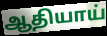
ஆதியாய்